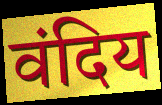
वंदिय